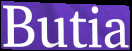
Butia